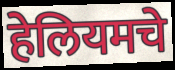
हेलियमचे